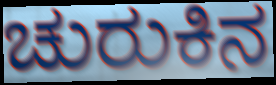
ಚುರುಕಿನ